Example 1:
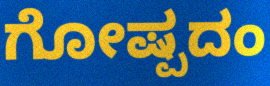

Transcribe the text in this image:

ಗೋಷ್ಪದಂ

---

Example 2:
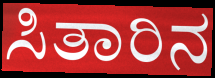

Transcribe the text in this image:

ಸಿತಾರಿನ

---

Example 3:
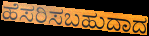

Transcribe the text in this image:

ಹೆಸರಿಸಬಹುದಾದ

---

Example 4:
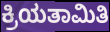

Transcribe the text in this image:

ಕ್ರಿಯತಾಮಿತಿ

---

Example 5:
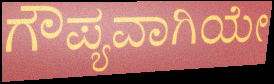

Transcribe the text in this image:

ಗೌಪ್ಯವಾಗಿಯೇ